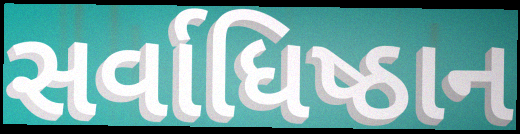
સર્વાધિષ્ઠાન